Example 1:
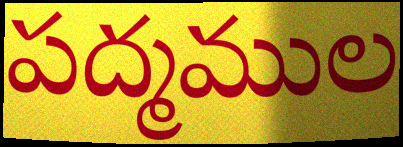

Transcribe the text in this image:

పద్మముల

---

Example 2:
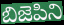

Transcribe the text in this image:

బిజెపిని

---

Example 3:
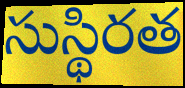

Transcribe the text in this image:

సుస్థిరత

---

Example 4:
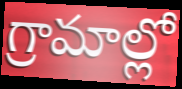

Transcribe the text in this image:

గ్రామాల్లో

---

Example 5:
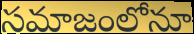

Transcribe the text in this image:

సమాజంలోనూ